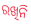
ରଖିନି